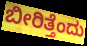
ಬೀರಿತ್ತೆಂದು